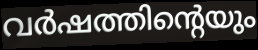
വർഷത്തിന്റെയും